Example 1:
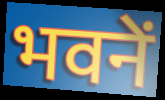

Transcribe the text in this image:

भवनें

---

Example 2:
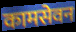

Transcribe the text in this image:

कामसेवन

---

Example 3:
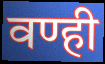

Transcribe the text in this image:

वण्ही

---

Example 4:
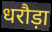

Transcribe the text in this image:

धरौड़ा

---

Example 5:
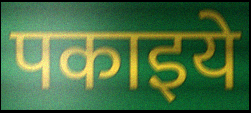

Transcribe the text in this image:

पकाइये